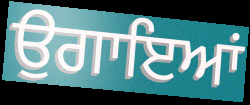
ਉਗਾਇਆਂ